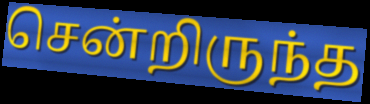
சென்றிருந்த